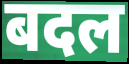
बदल